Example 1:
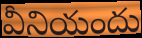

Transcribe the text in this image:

వీనియందు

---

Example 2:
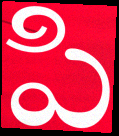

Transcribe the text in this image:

పి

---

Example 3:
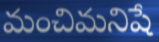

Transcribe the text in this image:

మంచిమనిషే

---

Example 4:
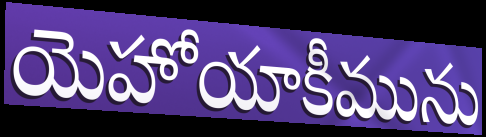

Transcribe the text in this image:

యెహోయాకీమును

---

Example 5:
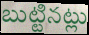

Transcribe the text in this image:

బుట్టినట్లు